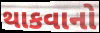
થાકવાનો